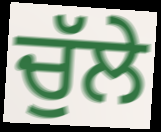
ਚੁੱਲੇ